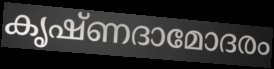
കൃഷ്ണദാമോദരം